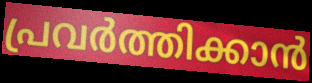
പ്രവർത്തിക്കാൻ